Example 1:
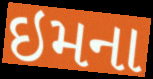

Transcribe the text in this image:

ઇમના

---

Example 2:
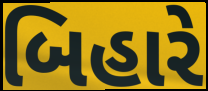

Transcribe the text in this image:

બિહારે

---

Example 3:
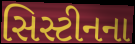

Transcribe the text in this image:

સિસ્ટીનના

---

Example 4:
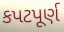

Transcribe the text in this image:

કપટપૂર્ણ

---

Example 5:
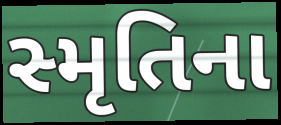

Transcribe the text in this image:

સ્મૃતિના